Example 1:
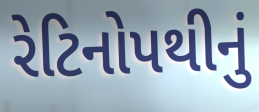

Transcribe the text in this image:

રેટિનોપથીનું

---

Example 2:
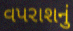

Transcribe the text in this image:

વપરાશનું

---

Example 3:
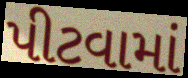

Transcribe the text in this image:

પીટવામાં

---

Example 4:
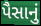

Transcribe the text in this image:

પૈસાનું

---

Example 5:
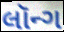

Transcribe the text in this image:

લૉન્ગ